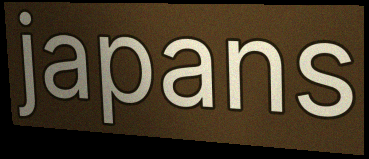
japans